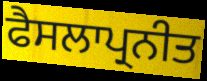
ਫੈਸਲਾਪ੍ਰਨੀਤ